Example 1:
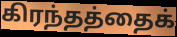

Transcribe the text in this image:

கிரந்தத்தைக்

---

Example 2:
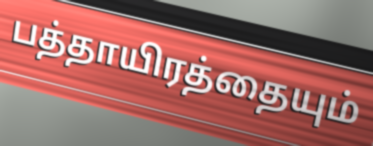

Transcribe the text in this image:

பத்தாயிரத்தையும்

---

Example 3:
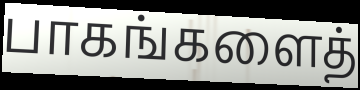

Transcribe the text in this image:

பாகங்களைத்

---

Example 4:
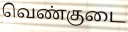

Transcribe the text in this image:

வெண்குடை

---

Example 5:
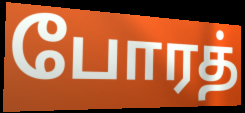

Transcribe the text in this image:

போரத்